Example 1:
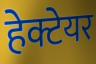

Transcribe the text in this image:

हेक्टेयर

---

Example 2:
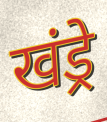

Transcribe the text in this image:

खंड्रे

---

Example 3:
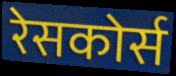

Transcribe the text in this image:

रेसकोर्स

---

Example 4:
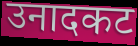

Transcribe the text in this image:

उनादकट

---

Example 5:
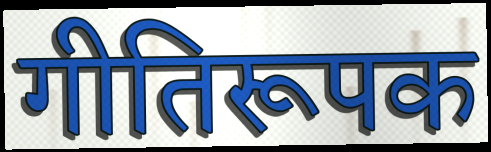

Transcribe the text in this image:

गीतिरूपक